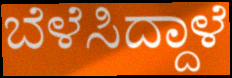
ಬೆಳೆಸಿದ್ದಾಳೆ